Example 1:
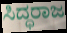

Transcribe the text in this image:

ಸಿದ್ಧರಾಜ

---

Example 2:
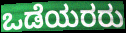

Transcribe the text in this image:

ಒಡೆಯರರು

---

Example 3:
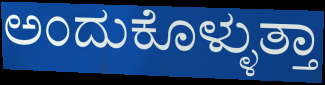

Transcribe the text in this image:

ಅಂದುಕೊಳ್ಳುತ್ತಾ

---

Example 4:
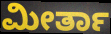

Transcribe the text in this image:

ಮೀರ್ತಾ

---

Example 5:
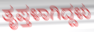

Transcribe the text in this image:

ತೃಪ್ತಳಾಗಿದ್ದಳು